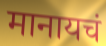
मानायचं